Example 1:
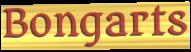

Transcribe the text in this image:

Bongarts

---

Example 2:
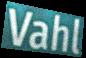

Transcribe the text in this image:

Vahl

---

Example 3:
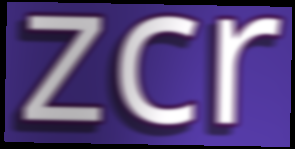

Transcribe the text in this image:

zcr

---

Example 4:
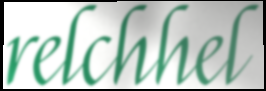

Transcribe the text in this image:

relchhel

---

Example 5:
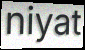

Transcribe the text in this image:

niyat